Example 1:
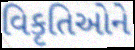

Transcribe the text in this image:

વિકૃતિઓને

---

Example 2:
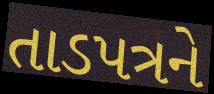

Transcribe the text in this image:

તાડપત્રને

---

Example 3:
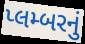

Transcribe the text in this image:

પ્લમ્બરનું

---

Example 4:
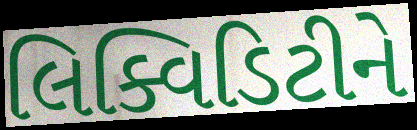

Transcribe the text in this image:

લિક્વિડિટીને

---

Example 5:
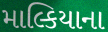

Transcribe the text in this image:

માલ્કિયાના